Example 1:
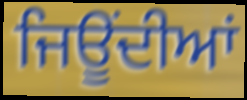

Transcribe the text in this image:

ਜਿਊਂਦੀਆਂ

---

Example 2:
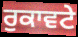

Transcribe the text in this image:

ਰੁਕਾਵਟੇ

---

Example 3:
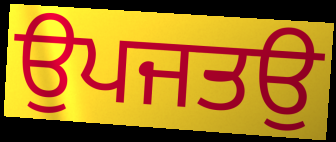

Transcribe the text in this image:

ਉਪਜਤਉ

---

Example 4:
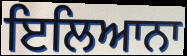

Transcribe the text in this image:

ਇਲਿਆਨਾ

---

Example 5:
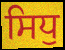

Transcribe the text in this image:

ਸਿਧੁ